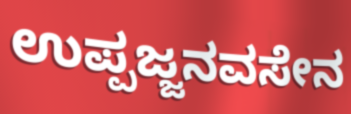
ಉಪ್ಪಜ್ಜನವಸೇನ